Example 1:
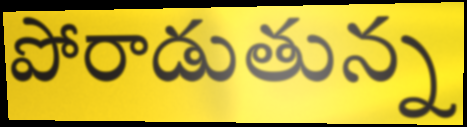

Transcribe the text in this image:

పోరాడుతున్న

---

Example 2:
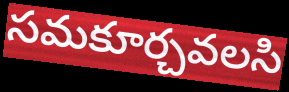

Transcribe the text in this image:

సమకూర్చవలసి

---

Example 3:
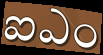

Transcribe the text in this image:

ఐఎం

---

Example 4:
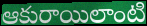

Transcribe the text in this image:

ఆకురాయిలాంటి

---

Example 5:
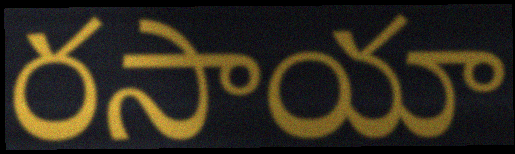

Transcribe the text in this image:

రసాయా